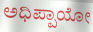
ಅಧಿಪ್ಪಾಯೋ